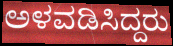
ಅಳವಡಿಸಿದ್ದರು